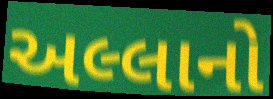
અલ્લાનો